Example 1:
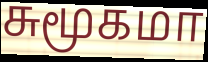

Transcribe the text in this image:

சுமூகமா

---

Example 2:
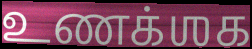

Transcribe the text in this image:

உணக்ஶக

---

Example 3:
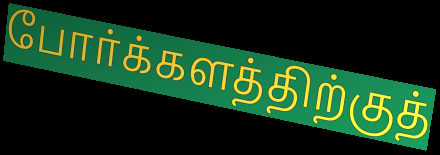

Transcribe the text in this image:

போர்க்களத்திற்குத்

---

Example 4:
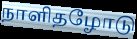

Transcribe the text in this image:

நாளிதழோடு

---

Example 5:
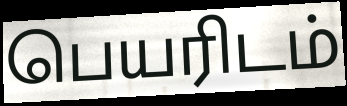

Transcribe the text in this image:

பெயரிடம்